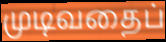
முடிவதைப்